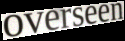
overseen